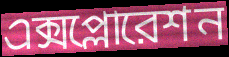
এক্সপ্লোরেশন